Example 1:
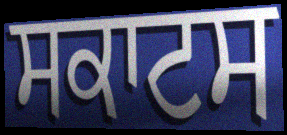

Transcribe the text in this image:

ਸਕਾਟਸ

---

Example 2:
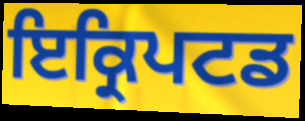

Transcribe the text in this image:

ਇਕ੍ਰਿਪਟਡ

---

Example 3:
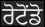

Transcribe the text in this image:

ਰੋਟੋਂਡੋ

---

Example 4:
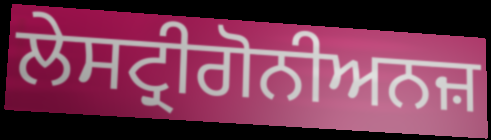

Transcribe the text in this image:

ਲੇਸਟ੍ਰੀਗੋਨੀਅਨਜ਼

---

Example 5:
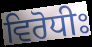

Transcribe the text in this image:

ਵਿਰੋਧੀਃ